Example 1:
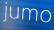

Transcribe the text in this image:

jumo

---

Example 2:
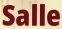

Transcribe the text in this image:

Salle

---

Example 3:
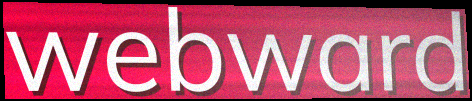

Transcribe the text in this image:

webward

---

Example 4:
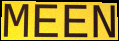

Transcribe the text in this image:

MEEN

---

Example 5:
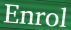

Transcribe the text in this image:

Enrol